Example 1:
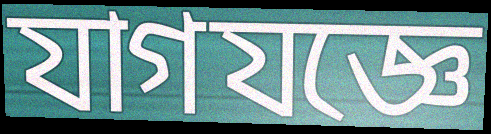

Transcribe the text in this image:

যাগযজ্ঞে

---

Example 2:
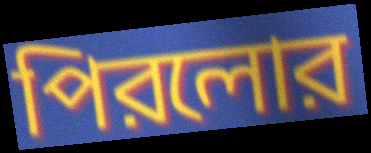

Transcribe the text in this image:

পিরলোর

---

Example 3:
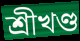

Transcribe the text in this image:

শ্রীখণ্ড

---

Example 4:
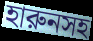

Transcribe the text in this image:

হারুনসহ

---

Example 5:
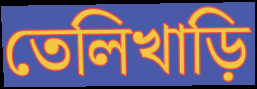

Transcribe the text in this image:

তেলিখাড়ি